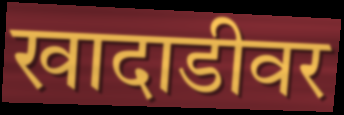
खादाडीवर